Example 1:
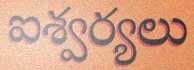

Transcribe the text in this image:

ఐశ్వర్యలు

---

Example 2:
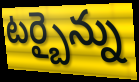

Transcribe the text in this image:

టర్బైన్ను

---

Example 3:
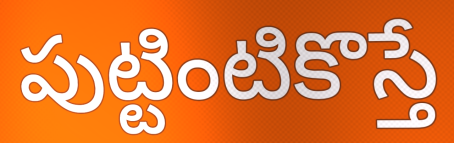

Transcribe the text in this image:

పుట్టింటికొస్తే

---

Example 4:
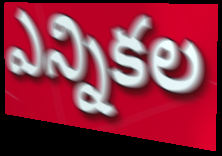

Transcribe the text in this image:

ఎన్నికల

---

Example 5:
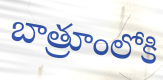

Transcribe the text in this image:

బాత్రూంలోకి